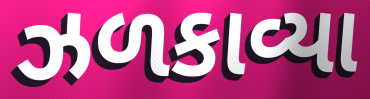
ઝળકાવ્યા